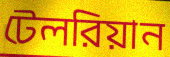
টেলরিয়ান